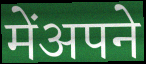
मेंअपने